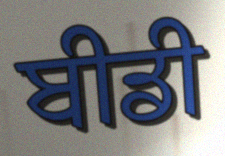
ਬੀਡੀ